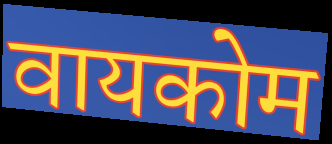
वायकोम